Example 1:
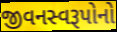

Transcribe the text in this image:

જીવનસ્વરૂપોનો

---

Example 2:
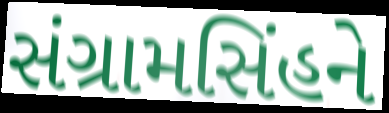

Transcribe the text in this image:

સંગ્રામસિંહને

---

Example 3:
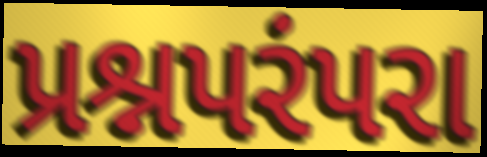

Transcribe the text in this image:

પ્રશ્નપરંપરા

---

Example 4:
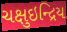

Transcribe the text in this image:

ચક્ષુઇન્દ્રિય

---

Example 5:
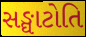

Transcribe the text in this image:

સઙ્ઘાટોતિ